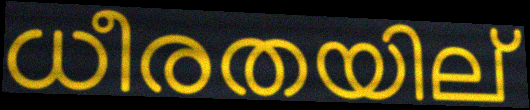
ധീരതയില്